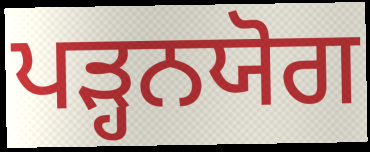
ਪੜ੍ਹਨਯੋਗ